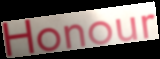
Honour